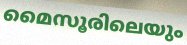
മൈസൂരിലെയും